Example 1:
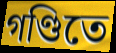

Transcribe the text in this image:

গণ্ডিতে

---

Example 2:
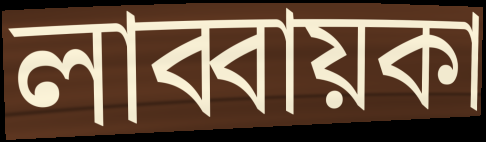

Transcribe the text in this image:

লাব্বায়কা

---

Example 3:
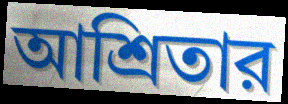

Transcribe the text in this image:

আশ্রিতার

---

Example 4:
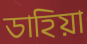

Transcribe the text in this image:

ডাহিয়া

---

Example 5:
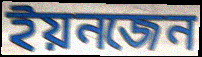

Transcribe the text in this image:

ইয়নজেন